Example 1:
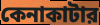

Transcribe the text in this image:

কেনাকাটার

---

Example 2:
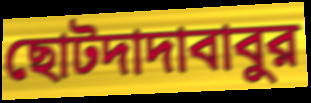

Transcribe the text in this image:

ছোটদাদাবাবুর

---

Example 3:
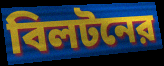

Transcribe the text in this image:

বিলটনের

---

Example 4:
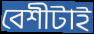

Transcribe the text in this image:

বেশীটাই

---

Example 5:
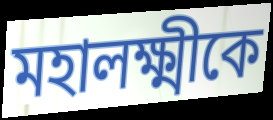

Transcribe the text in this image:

মহালক্ষ্মীকে